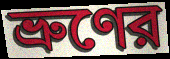
ভ্রুণের